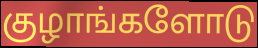
குழாங்களோடு